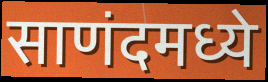
साणंदमध्ये